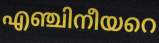
എഞ്ചിനീയറെ